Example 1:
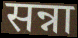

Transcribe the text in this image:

सन्ना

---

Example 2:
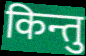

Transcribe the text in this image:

किन्‍तु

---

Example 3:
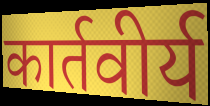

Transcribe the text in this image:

कार्तवीर्य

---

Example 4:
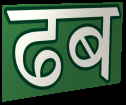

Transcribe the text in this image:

ढब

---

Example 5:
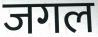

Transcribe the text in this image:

जगल